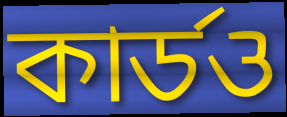
কার্ডও